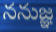
ననుజ్ఞ